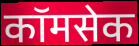
कॉमसेक